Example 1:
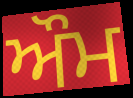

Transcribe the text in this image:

ਔਮ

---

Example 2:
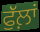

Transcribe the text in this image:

ਫੁੱਲ਼ਾਂ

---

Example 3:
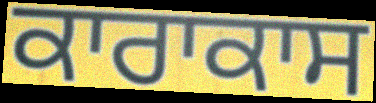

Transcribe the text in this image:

ਕਾਰਾਕਾਸ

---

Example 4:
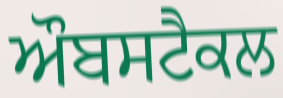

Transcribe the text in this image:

ਔਬਸਟੈਕਲ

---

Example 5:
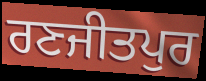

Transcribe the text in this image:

ਰਣਜੀਤਪੁਰ